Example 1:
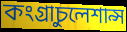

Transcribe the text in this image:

কংগ্রাচুলেশান্স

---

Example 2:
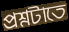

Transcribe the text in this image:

প্রশ্নটাতে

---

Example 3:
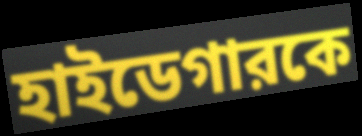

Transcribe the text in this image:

হাইডেগারকে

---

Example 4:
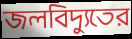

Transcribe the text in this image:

জলবিদ্যুতের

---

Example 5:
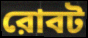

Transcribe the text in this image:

রোবট